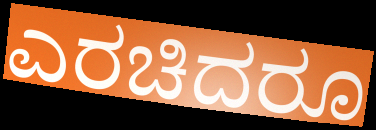
ಎರಚಿದರೂ